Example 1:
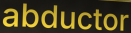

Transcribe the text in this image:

abductor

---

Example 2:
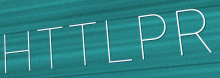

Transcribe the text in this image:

HTTLPR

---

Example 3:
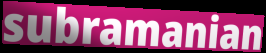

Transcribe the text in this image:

subramanian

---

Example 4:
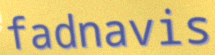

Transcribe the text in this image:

fadnavis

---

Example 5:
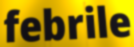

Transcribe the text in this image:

febrile